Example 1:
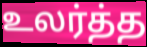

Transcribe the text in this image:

உலர்த்த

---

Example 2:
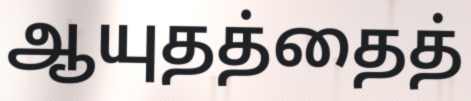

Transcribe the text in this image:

ஆயுதத்தைத்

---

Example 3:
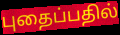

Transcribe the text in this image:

புதைப்பதில்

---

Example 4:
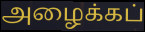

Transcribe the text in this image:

அழைக்கப்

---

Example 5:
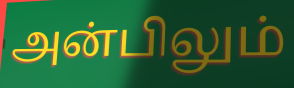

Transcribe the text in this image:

அன்பிலும்